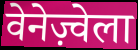
वेनेज़्वेला